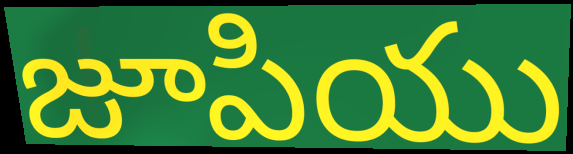
జూపియు